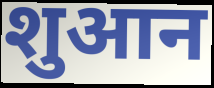
शुआन